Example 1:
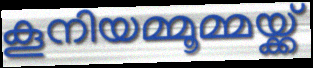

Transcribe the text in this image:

കൂനിയമ്മൂമ്മയ്ക്ക്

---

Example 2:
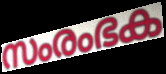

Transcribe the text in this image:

സംരംഭക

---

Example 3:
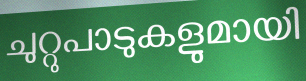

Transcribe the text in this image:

ചുറ്റുപാടുകളുമായി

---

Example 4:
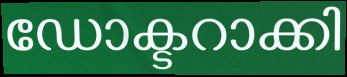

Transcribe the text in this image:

ഡോക്ടറാക്കി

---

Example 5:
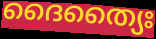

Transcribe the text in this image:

ദൈത്യൈഃ